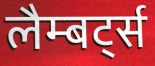
लैम्बर्ट्स